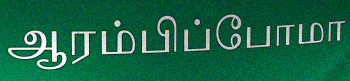
ஆரம்பிப்போமா